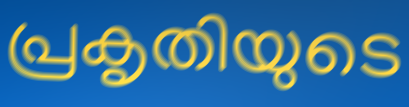
പ്രകൃതിയുടെ